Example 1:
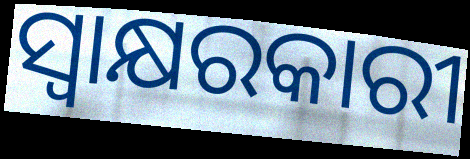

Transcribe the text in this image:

ସ୍ୱାକ୍ଷରକାରୀ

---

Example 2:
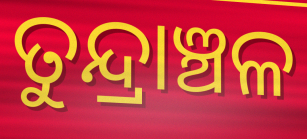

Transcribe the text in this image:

ତୁନ୍ଦ୍ରାଞ୍ଚଳ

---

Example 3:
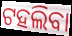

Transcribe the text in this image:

ଟହଲିବା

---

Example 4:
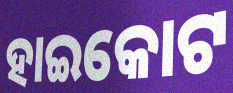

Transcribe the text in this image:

ହାଇକୋଟ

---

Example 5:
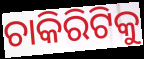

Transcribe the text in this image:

ଚାକିରିଟିକୁ